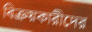
বিক্রয়কারীদের